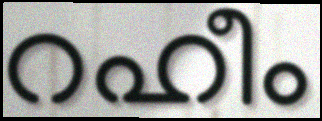
റഹീം